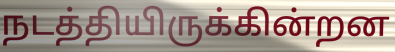
நடத்தியிருக்கின்றன